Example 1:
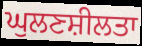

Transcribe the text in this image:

ਘੁਲਣਸ਼ੀਲਤਾ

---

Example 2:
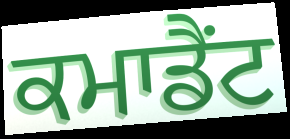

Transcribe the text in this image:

ਕਮਾਡੈਂਟ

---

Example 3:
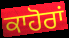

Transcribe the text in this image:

ਕਾਹੋਰਾਂ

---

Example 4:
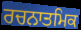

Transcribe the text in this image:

ਰਚਨਾਤਮਿਕ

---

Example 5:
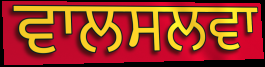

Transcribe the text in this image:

ਵਾਲਸਲਵਾ